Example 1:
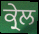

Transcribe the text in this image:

ਕ੍ਰੇਲ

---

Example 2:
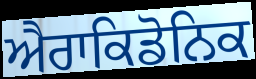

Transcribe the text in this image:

ਐਰਾਕਿਡੋਨਿਕ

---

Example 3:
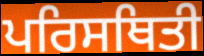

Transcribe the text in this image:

ਪਰਿਸਥਿਤੀ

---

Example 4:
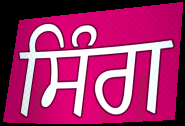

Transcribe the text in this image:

ਸਿੰਗ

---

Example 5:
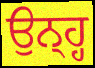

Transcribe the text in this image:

ਉਨ੍ਹ੍ਹ